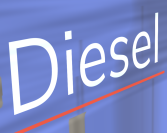
Diesel